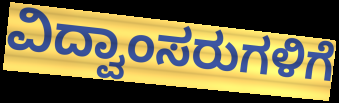
ವಿದ್ವಾಂಸರುಗಳಿಗೆ